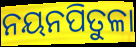
ନୟନପିତୁଳା